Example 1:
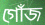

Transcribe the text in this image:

গোঁজ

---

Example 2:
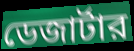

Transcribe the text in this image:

ডেজার্টার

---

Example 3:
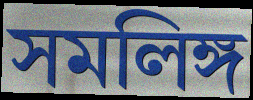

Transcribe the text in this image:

সমলিঙ্গ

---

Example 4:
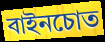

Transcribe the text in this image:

বাইনচোত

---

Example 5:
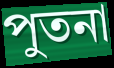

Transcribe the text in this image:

পুতনা